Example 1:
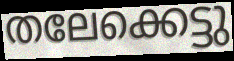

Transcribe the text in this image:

തലേക്കെട്ടു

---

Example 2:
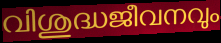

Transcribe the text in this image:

വിശുദ്ധജീവനവും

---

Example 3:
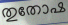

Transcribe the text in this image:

തുതോഷ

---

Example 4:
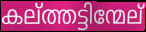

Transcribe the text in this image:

കല്ത്തട്ടിന്മേല്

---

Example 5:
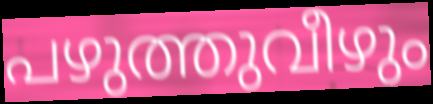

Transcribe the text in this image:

പഴുത്തുവീഴും